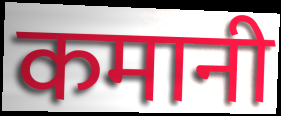
कमानी